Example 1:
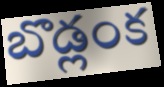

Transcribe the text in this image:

బొడ్లంక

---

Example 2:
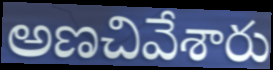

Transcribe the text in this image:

అణచివేశారు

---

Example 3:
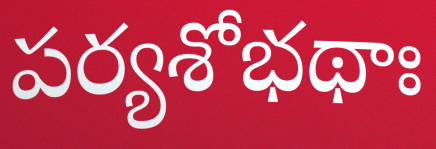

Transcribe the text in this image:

పర్యశోభథాః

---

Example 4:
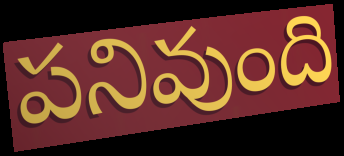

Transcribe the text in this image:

పనివుంది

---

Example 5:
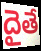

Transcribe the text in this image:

దైతే